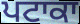
ਪਟਾਕਾ